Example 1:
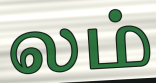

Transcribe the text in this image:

லம்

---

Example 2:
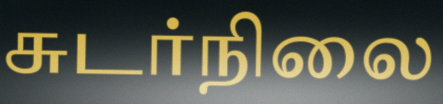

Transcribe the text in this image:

சுடர்நிலை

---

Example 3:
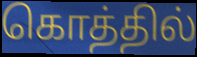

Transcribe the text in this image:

கொத்தில்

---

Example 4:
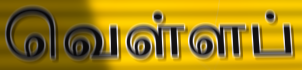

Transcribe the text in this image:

வெள்ளப்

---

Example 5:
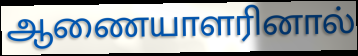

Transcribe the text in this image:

ஆணையாளரினால்